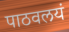
पाठवलयं